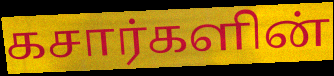
கசார்களின்